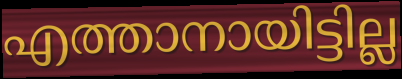
എത്താനായിട്ടില്ല